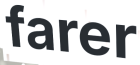
farer